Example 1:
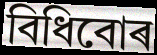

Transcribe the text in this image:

বিধিবোৰ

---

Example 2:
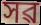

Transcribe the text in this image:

সৱ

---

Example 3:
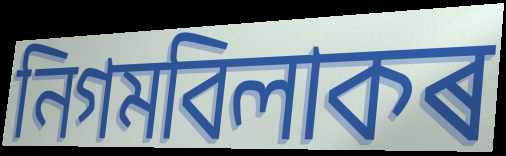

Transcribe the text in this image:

নিগমবিলাকৰ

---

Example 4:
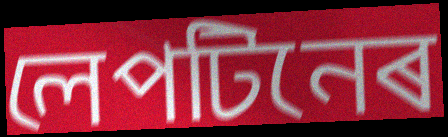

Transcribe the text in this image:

লেপটিনেৰ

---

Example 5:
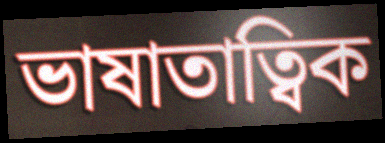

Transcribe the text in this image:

ভাষাতাত্বিক